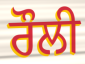
ਰੌਲੀ